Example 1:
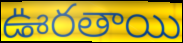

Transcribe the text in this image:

ఊరతాయి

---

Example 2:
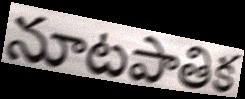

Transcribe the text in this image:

నూటపాతిక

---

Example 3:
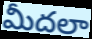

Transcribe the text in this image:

మీదలా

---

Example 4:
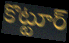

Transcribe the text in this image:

కొట్టూర్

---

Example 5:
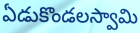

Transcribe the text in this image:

ఏడుకొండలస్వామి